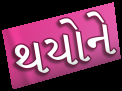
થયોને